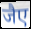
जैए